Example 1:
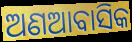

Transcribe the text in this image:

ଅଣଆବାସିକ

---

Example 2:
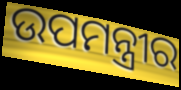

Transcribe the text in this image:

ଉପମନ୍ତ୍ରୀର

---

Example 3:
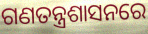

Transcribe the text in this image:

ଗଣତନ୍ତ୍ରଶାସନରେ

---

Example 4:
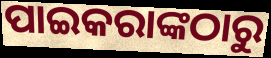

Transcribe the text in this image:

ପାଇକରାଙ୍କଠାରୁ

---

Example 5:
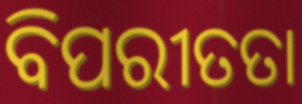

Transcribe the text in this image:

ବିପରୀତତା